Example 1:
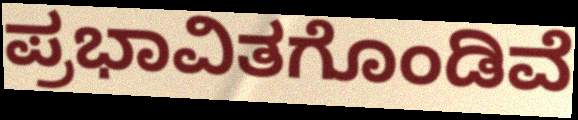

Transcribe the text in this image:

ಪ್ರಭಾವಿತಗೊಂಡಿವೆ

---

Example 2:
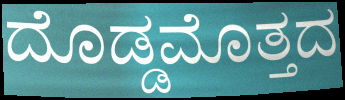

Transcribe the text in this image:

ದೊಡ್ಡಮೊತ್ತದ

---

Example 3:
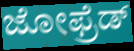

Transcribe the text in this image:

ಜೋಫ್ರೆಡ್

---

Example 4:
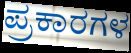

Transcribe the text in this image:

ಪ್ರಕಾರಗಳ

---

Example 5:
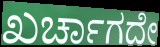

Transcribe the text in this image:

ಖರ್ಚಾಗದೇ